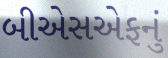
બીએસએફનું